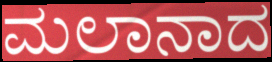
ಮಲಾನಾದ